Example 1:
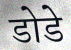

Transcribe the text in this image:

डोडे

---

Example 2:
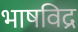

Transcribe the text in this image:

भाषविद्र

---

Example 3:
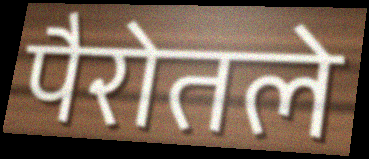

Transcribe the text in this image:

पैरोतले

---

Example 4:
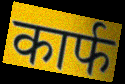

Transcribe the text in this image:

कार्फ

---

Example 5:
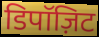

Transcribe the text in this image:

डिपॉज़िट